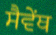
ਸੈਵੇਂਥ